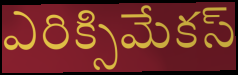
ఎరిక్సిమేకస్